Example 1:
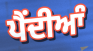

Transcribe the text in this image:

ਪੈੰਦੀਆੰ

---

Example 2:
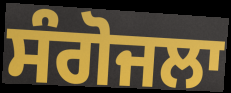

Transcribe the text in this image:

ਸੰਗੋਜਲਾ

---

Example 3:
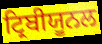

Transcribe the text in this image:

ਟ੍ਰਿਬੀਯੂਨਲ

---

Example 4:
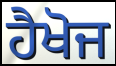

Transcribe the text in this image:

ਹੈਖੋਜ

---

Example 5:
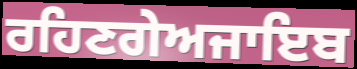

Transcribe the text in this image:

ਰਹਿਣਗੇਅਜਾਇਬ